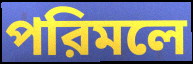
পরিমলে